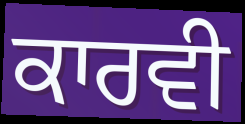
ਕਾਰਵੀ